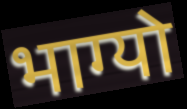
भाग्यो